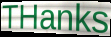
THanks